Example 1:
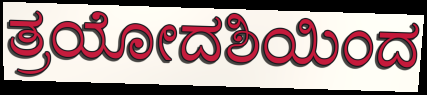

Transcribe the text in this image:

ತ್ರಯೋದಶಿಯಿಂದ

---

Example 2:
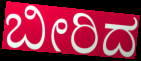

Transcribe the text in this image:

ಬೀರಿದ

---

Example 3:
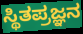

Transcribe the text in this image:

ಸ್ಥಿತಪ್ರಜ್ಞನ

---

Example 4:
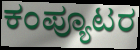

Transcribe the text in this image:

ಕಂಪ್ಯೂಟರ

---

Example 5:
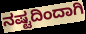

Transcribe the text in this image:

ನಷ್ಟದಿಂದಾಗಿ